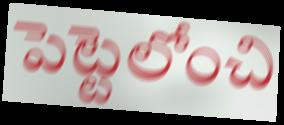
పెట్టెలోంచి